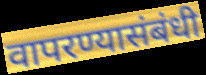
वापरण्यासंबंधी